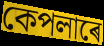
কেপলাৰে